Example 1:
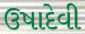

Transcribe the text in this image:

ઉષાદેવી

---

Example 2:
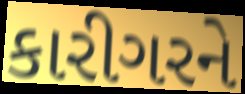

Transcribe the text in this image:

કારીગરને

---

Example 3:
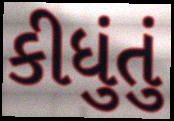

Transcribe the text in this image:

કીધુંતું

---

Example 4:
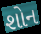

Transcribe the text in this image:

શોન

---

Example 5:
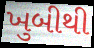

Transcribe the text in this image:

ખુબીથી